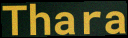
Thara